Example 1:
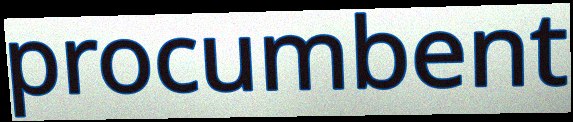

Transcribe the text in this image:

procumbent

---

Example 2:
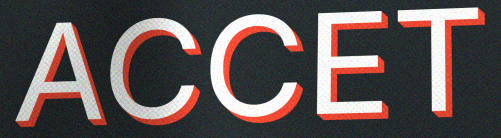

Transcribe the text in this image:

ACCET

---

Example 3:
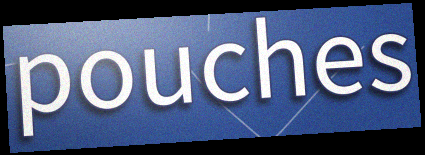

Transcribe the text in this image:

pouches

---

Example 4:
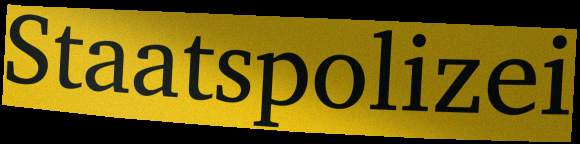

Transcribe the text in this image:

Staatspolizei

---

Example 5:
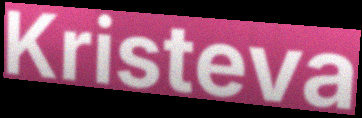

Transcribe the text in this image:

Kristeva